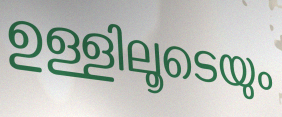
ഉള്ളിലൂടെയും